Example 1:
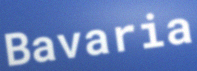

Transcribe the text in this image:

Bavaria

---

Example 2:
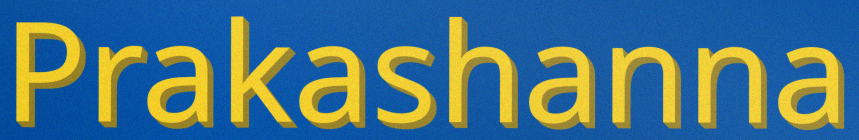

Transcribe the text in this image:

Prakashanna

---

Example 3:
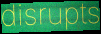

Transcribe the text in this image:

disrupts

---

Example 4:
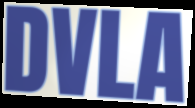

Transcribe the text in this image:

DVLA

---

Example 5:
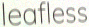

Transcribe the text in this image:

leafless